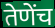
तेणेंच